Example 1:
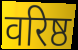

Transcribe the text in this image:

वरिष्ठ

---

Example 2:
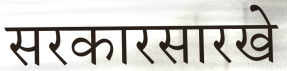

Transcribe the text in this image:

सरकारसारखे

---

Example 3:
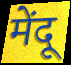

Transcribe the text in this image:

मेंदू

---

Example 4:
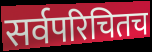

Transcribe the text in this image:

सर्वपरिचितच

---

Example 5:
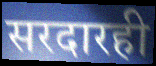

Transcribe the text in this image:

सरदारही